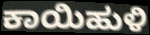
ಕಾಯಿಹುಳಿ